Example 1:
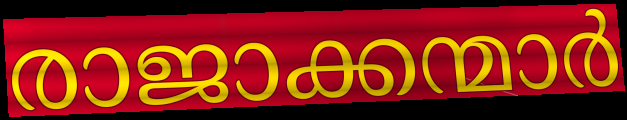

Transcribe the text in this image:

രാജാക്കന്മാർ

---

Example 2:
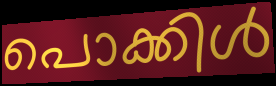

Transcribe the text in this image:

പൊക്കിൾ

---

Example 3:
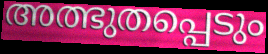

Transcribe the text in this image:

അത്ഭുതപ്പെടും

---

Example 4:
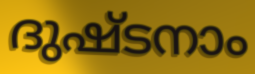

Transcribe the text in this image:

ദുഷ്ടനാം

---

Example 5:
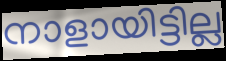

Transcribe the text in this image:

നാളായിട്ടില്ല